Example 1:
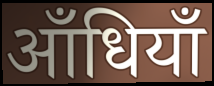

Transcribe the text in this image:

आँधियाँ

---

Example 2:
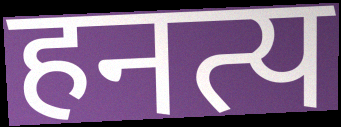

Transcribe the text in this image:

हनत्य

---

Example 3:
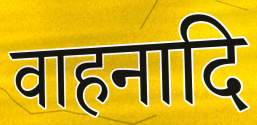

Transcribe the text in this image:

वाहनादि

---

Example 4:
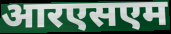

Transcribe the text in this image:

आरएसएम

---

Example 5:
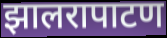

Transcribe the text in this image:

झालरापाटण